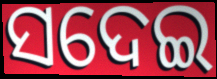
ସଦେଇ